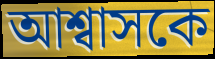
আশ্বাসকে